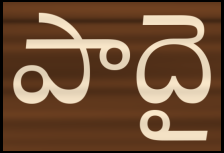
పాదై